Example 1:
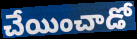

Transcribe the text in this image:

చేయించాడో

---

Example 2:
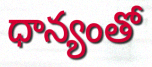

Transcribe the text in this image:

ధాన్యంతో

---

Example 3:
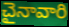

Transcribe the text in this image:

చైనావారి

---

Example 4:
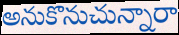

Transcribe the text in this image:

అనుకొనుచున్నారా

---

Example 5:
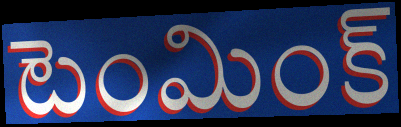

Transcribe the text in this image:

టెంమింక్